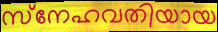
സ്‌നേഹവതിയായ